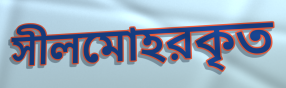
সীলমোহরকৃত